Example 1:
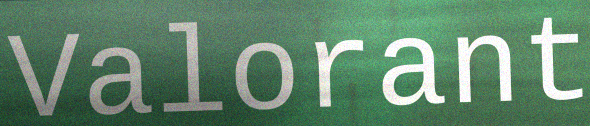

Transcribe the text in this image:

Valorant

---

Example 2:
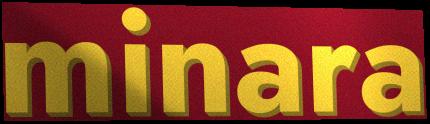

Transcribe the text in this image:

minara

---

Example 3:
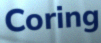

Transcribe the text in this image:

Coring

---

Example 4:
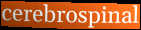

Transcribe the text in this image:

cerebrospinal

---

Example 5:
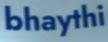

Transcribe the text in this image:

bhaythi